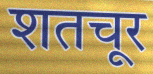
शतचूर